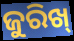
ଜୁରିଖ୍